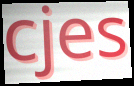
cjes